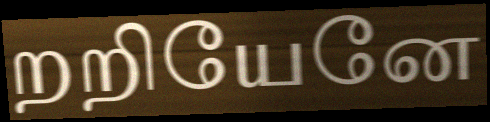
றறியேனே